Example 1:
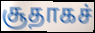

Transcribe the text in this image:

சூதாகச்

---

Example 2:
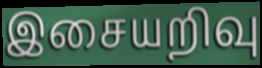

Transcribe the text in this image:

இசையறிவு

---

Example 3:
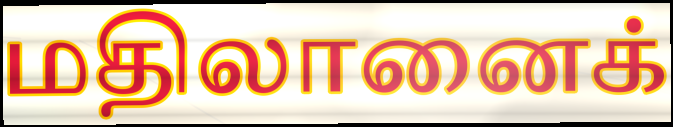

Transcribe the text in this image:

மதிலானைக்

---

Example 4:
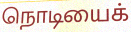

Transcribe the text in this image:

நொடியைக்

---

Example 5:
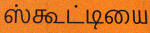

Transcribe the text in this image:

ஸ்கூட்டியை